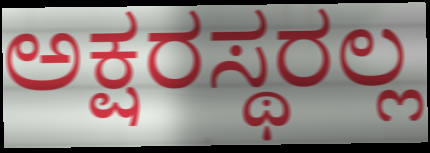
ಅಕ್ಷರಸ್ಥರಲ್ಲ